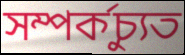
সম্পর্কচ্যুত